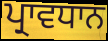
ਪ੍ਰਾਵਧਾਨ